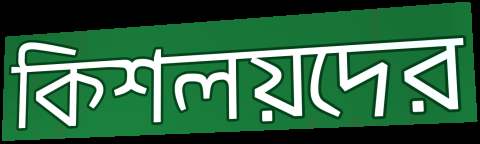
কিশলয়দের